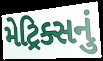
મેટ્રિક્સનું